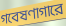
গবেষণাগারে